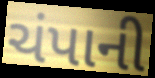
ચંપાની